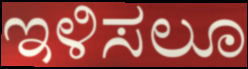
ಇಳಿಸಲೂ